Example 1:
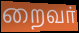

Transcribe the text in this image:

றைவர்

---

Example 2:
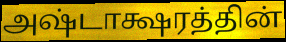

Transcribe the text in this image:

அஷ்டாக்ஷரத்தின்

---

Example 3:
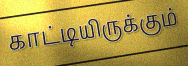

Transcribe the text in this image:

காட்டியிருக்கும்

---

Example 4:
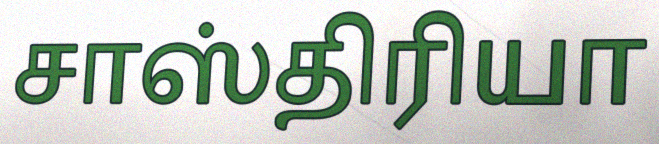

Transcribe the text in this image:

சாஸ்திரியா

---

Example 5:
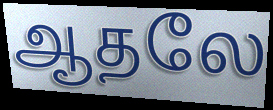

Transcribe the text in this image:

ஆதலே